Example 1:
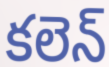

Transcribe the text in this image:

కలెన్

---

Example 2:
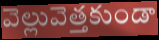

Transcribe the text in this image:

వెల్లువెత్తకుండా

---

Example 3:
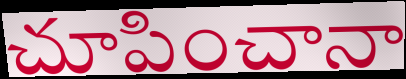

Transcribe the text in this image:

చూపించానా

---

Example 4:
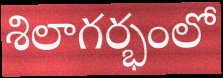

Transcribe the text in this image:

శిలాగర్భంలో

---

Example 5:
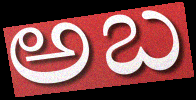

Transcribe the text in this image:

అబ